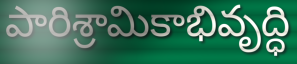
పారిశ్రామికాభివృద్ధి